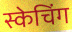
स्केचिंग